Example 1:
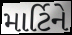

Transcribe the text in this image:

માર્ટિને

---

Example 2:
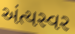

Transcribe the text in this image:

અંત્યસ્વર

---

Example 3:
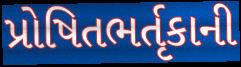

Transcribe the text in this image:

પ્રોષિતભર્તૃકાની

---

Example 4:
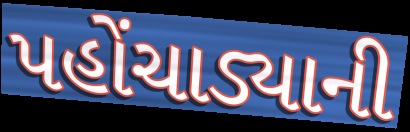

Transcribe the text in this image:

પહોંચાડ્યાની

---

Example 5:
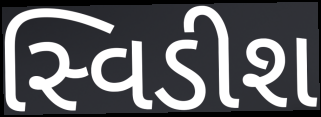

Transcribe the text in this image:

સ્વિડીશ